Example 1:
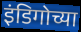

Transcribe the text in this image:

इंडिगोच्या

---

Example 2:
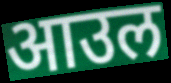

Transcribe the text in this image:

आउल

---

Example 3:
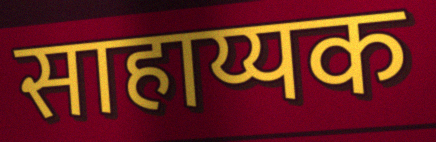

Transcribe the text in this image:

साहाय्यक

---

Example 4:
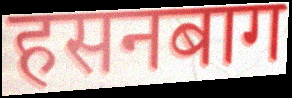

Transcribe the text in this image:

हसनबाग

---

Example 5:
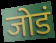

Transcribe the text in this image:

जोडं